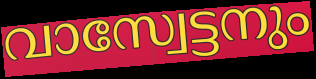
വാസ്വേട്ടനും